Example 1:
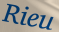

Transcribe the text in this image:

Rieu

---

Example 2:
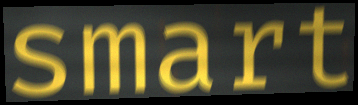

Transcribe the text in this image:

smart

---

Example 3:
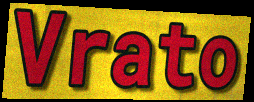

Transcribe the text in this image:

Vrato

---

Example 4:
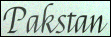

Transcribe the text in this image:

Pakstan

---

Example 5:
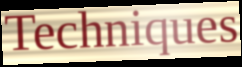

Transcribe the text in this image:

Techniques